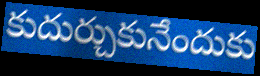
కుదుర్చుకునేందుకు